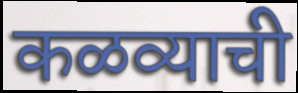
कळव्याची